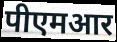
पीएमआर